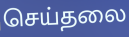
செய்தலை